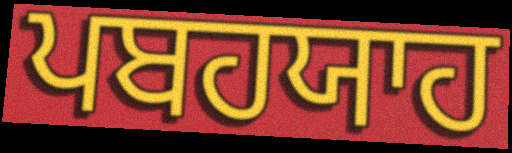
ਪਬਹਯਾਹ